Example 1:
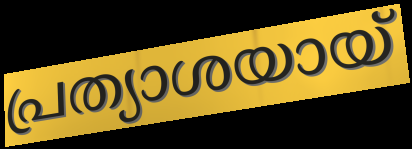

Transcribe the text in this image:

പ്രത്യാശയായ്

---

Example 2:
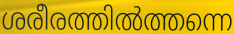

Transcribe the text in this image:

ശരീരത്തിൽത്തന്നെ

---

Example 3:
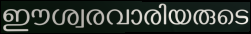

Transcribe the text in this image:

ഈശ്വരവാരിയരുടെ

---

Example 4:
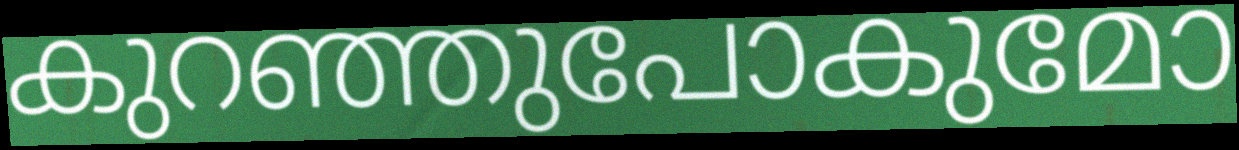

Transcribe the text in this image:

കുറഞ്ഞുപോകുമോ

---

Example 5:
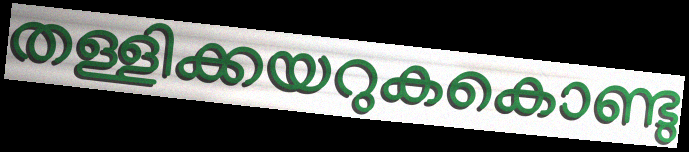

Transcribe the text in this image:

തള്ളിക്കയറുകകൊണ്ടു